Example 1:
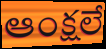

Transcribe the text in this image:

ఆంక్షలే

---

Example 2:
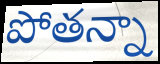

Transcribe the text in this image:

పోతన్నా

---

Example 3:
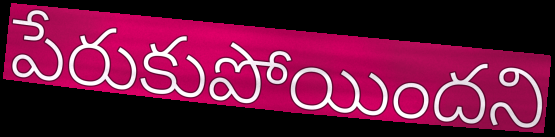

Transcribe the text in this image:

పేరుకుపోయిందని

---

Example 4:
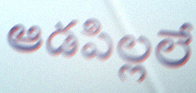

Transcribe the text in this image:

ఆడపిల్లలే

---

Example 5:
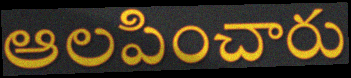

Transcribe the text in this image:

ఆలపించారు